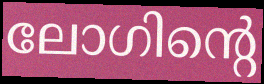
ലോഗിന്റെ